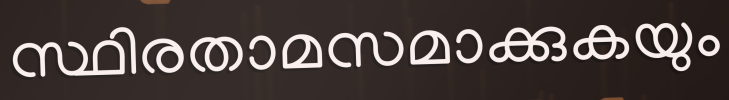
സ്ഥിരതാമസമാക്കുകയും